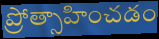
ప్రోత్సాహించడం